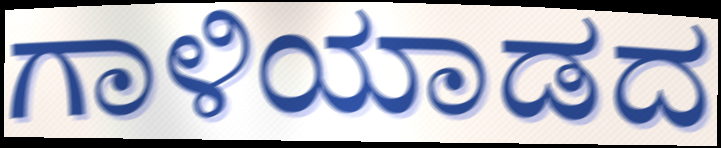
ಗಾಳಿಯಾಡದ